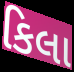
કિલા